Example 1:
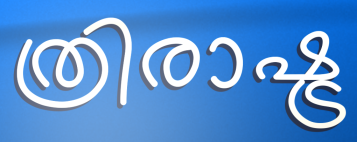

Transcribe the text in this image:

ത്രിരാഷ്ട്ര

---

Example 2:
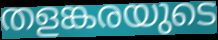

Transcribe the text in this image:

തളങ്കരയുടെ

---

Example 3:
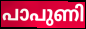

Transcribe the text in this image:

പാപുണി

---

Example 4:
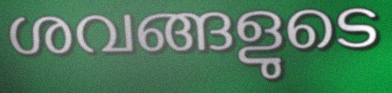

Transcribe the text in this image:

ശവങ്ങളുടെ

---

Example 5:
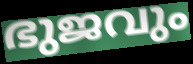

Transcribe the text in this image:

ഭുജവും